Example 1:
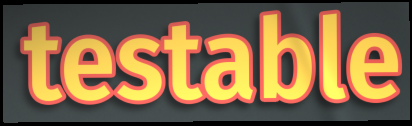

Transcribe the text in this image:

testable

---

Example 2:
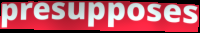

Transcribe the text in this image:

presupposes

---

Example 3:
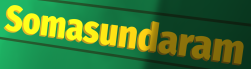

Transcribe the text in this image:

Somasundaram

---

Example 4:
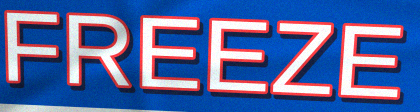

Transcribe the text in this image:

FREEZE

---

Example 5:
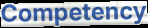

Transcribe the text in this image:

Competency